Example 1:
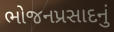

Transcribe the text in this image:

ભોજનપ્રસાદનું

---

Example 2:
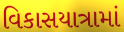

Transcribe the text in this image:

વિકાસયાત્રામાં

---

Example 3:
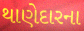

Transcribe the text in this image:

થાણેદારના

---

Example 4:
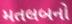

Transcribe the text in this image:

મતલબનો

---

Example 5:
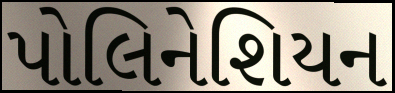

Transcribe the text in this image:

પોલિનેશિયન